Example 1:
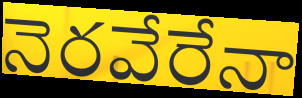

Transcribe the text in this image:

నెరవేరేనా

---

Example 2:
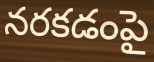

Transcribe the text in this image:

నరకడంపై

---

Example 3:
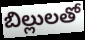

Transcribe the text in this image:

బిల్లులతో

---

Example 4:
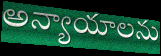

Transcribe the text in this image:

అన్యాయాలను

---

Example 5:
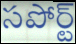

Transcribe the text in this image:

సపోర్ట్